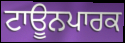
ਟਾਊਨਪਾਰਕ